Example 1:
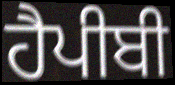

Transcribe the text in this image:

ਹੈਪੀਬੀ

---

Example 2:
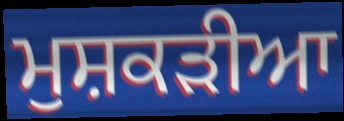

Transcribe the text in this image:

ਮੁਸ਼ਕੜੀਆ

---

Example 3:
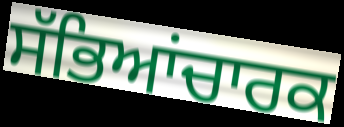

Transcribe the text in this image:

ਸੱਭਿਆਂਚਾਰਕ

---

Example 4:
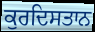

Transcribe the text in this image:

ਕੁਰਦਿਸਤਾਨ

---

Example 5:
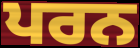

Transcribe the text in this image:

ਪਰਨ